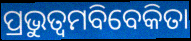
ପ୍ରଭୁତ୍ୱମବିବେକିତା